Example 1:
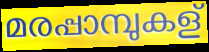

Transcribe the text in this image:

മരപ്പാമ്പുകള്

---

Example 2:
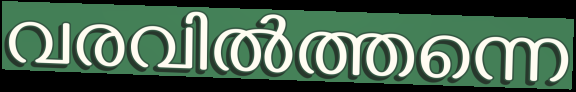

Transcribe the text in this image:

വരവിൽത്തന്നെ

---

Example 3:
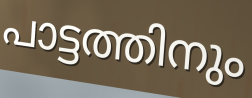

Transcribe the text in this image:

പാട്ടത്തിനും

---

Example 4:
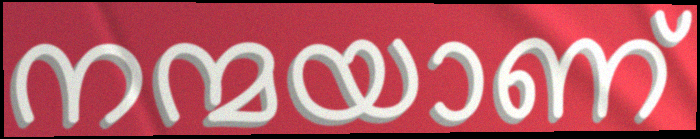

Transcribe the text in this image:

നന്മയാണ്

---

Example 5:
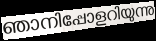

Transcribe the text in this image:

ഞാനിപ്പോളറിയുന്നു